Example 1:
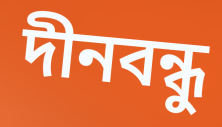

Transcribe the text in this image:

দীনবন্ধু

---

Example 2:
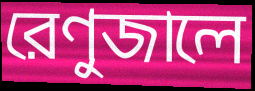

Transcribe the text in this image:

রেণুজালে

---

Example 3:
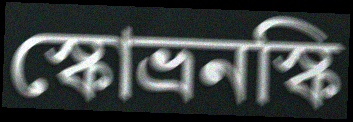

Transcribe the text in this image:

স্কোভ্রনস্কি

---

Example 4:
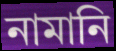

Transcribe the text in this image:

নামানি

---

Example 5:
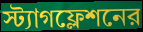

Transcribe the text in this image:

স্ট্যাগফ্লেশনের